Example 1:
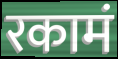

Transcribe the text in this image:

रकामं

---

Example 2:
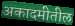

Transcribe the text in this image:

अकादमीतील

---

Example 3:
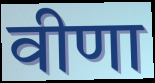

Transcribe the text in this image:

वीणा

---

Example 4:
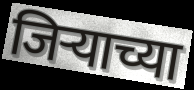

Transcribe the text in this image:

जिऱ्याच्या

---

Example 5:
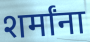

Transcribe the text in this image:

शर्मांना